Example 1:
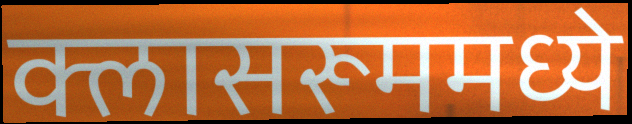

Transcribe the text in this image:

क्लासरूममध्ये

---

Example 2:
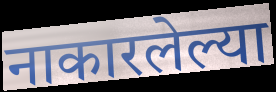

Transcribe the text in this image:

नाकारलेल्या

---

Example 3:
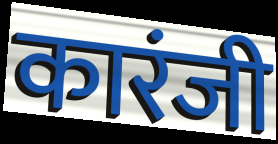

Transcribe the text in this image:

कारंजी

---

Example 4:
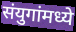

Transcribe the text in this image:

संयुगांमध्ये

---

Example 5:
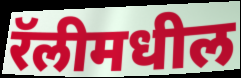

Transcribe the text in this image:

रॅलीमधील